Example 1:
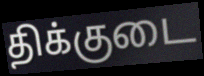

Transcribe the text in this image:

திக்குடை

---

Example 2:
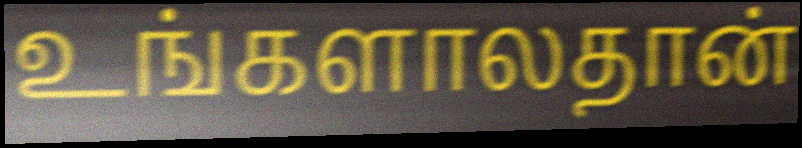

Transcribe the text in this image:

உங்களாலதான்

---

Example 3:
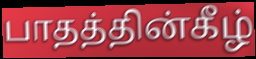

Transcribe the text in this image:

பாதத்தின்கீழ்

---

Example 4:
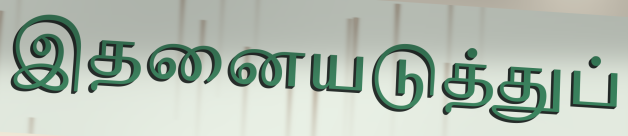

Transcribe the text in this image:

இதனையடுத்துப்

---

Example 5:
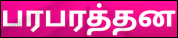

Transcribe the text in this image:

பரபரத்தன